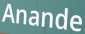
Anande